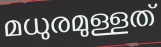
മധുരമുള്ളത്